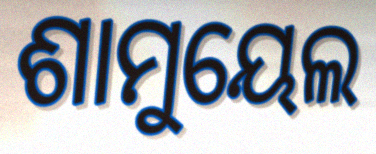
ଶାମୁୟେଲ